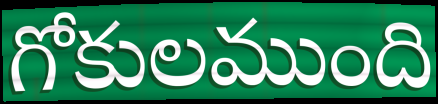
గోకులముంది